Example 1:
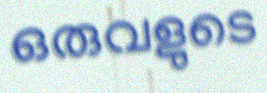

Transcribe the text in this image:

ഒരുവളുടെ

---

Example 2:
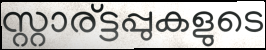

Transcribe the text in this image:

സ്റ്റാര്ട്ടപ്പുകളുടെ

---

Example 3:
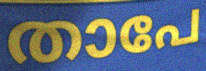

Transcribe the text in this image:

താപേ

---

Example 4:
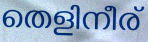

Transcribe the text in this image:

തെളിനീര്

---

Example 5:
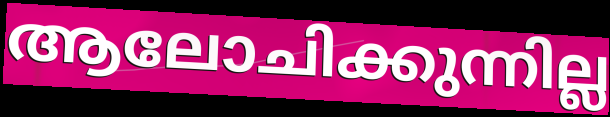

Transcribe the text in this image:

ആലോചിക്കുന്നില്ല